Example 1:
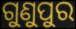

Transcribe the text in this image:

ଗୁଣୁପୁର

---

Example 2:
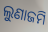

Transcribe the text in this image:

ଲୁଣାଜମି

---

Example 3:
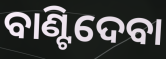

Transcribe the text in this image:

ବାଣ୍ଟିଦେବା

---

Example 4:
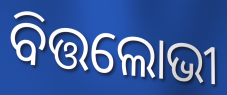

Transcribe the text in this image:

ବିତ୍ତଲୋଭୀ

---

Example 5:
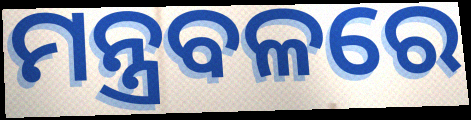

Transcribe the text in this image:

ମନ୍ତ୍ରବଳରେ